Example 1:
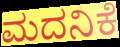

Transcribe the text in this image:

ಮದನಿಕೆ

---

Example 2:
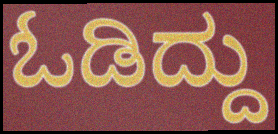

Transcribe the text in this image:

ಓಡಿದ್ದು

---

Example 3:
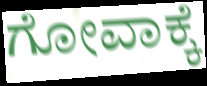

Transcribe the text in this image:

ಗೋವಾಕ್ಕೆ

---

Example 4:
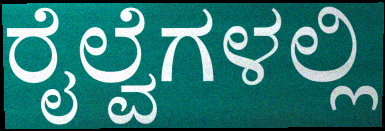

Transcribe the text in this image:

ರೈಲ್ವೆಗಳಲ್ಲಿ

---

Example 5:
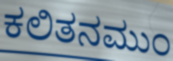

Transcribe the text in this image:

ಕಲಿತನಮುಂ